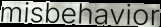
misbehavior